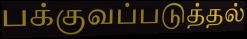
பக்குவப்படுத்தல்